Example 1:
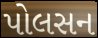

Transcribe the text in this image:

પોલસન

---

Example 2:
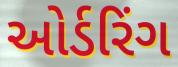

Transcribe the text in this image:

ઓર્ડરિંગ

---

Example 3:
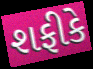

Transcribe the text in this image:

શફીકે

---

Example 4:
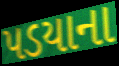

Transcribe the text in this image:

પડયાના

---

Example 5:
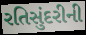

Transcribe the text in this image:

રતિસુંદરીની